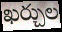
ఖర్చుల